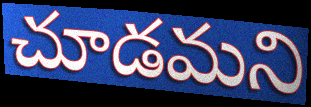
చూడమని